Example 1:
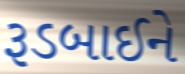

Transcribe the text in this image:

રૂડબાઈને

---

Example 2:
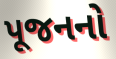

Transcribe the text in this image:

પૂજનનો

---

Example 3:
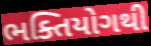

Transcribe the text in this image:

ભક્તિયોગથી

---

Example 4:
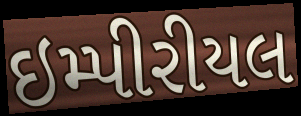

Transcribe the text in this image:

ઇમ્પીરીયલ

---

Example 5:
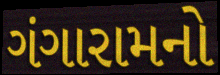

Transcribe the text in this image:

ગંગારામનો